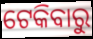
ଟେକିବାରୁ